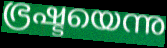
ഭ്രഷ്ടയെന്നു